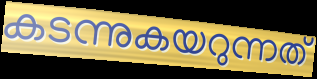
കടന്നുകയറുന്നത്